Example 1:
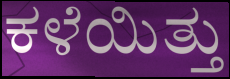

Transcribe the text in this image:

ಕಳೆಯಿತ್ತು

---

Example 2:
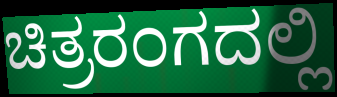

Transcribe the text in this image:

ಚಿತ್ರರಂಗದಲ್ಲಿ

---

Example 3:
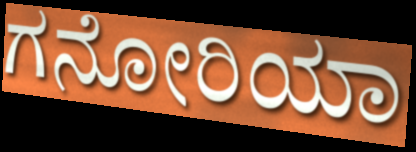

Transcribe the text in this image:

ಗನೋರಿಯಾ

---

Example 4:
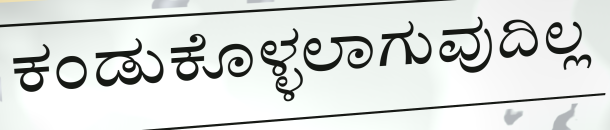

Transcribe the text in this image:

ಕಂಡುಕೊಳ್ಳಲಾಗುವುದಿಲ್ಲ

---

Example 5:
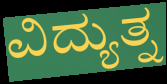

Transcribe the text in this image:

ವಿದ್ಯುತ್ನ